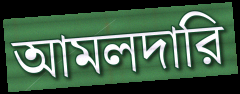
আমলদারি